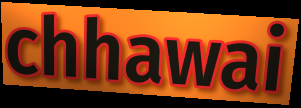
chhawai